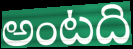
అంటది